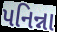
પનિન્ના